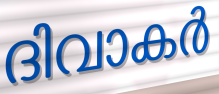
ദിവാകർ